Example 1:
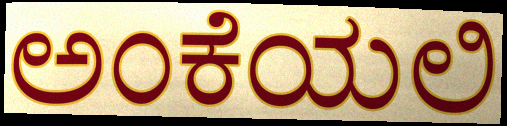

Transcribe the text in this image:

ಅಂಕೆಯಲಿ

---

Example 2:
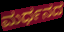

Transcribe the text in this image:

ಮರ್ಧನದ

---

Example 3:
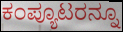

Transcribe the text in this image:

ಕಂಪ್ಯೂಟರನ್ನೂ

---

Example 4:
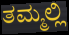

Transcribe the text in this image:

ತಮ್ಮಲ್ಲಿ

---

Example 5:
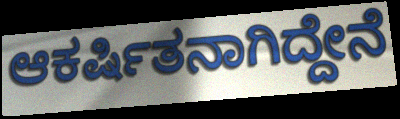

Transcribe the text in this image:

ಆಕರ್ಷಿತನಾಗಿದ್ದೇನೆ